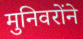
मुनिवरोंने